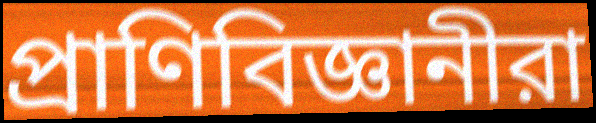
প্রাণিবিজ্ঞানীরা